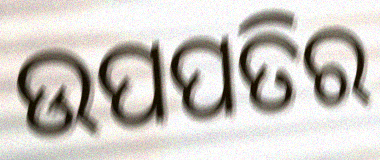
ଉପପତିର